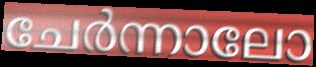
ചേർന്നാലോ